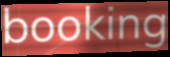
booking